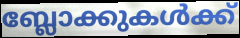
ബ്ലോക്കുകൾക്ക്